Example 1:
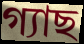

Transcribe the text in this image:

গ্যাছ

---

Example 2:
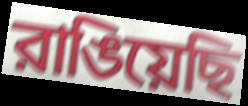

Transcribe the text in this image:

রাঙিয়েছি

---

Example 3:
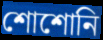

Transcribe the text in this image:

শোশোনি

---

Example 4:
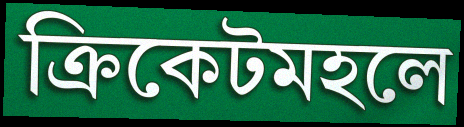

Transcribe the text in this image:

ক্রিকেটমহলে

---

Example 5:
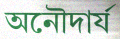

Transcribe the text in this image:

অনৌদার্য